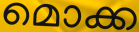
മൊക്ക